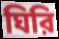
ঘিরি